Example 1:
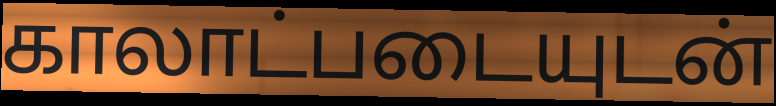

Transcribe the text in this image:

காலாட்படையுடன்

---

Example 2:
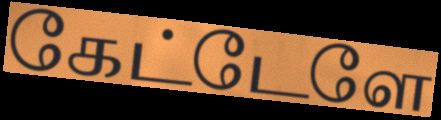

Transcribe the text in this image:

கேட்டேளே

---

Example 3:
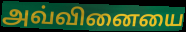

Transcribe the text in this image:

அவ்வினையை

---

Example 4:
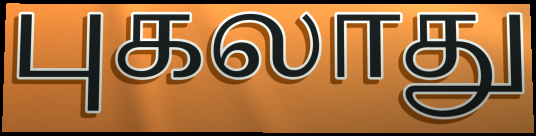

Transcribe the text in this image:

புகலாது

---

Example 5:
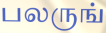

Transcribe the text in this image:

பலருங்